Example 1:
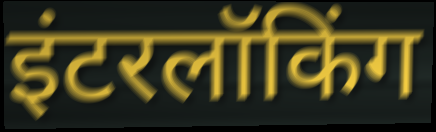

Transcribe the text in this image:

इंटरलॉकिंग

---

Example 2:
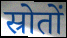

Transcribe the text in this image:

स्रोतों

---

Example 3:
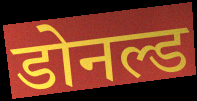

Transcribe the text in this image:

डोनल्‍ड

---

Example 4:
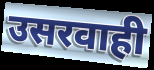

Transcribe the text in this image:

उसरवाही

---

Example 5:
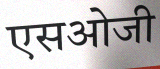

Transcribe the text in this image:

एसओजी